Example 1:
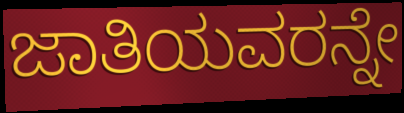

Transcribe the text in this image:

ಜಾತಿಯವರನ್ನೇ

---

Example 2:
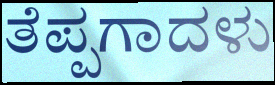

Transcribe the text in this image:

ತೆಪ್ಪಗಾದಳು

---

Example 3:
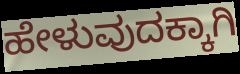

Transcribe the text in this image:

ಹೇಳುವುದಕ್ಕಾಗಿ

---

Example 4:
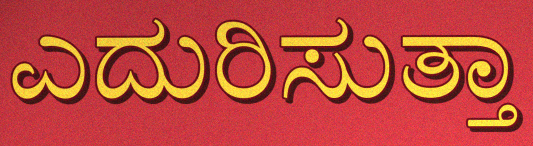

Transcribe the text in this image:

ಎದುರಿಸುತ್ತಾ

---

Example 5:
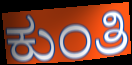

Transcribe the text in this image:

ಕುಂತಿ